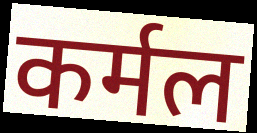
कर्मल